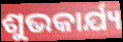
ଶୁଭକାର୍ଯ୍ୟ